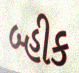
બ્હીક